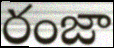
రంజా